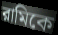
রামিকে